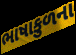
ભાષાકુળના